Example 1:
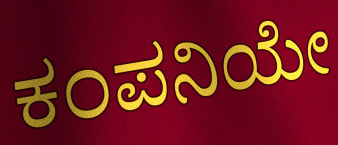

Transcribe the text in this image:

ಕಂಪನಿಯೇ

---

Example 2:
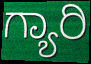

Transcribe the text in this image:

ಗ್ಯಾರಿ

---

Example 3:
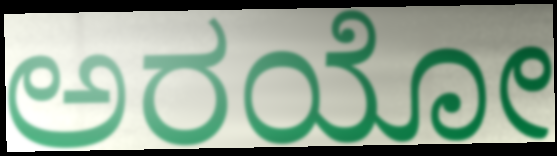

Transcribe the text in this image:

ಅರಯೋ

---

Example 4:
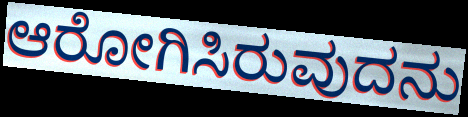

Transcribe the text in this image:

ಆರೋಗಿಸಿರುವುದನು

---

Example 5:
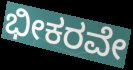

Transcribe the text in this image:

ಭೀಕರವೇ